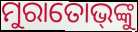
ମୁରାତୋଭ୍‌ଙ୍କୁ